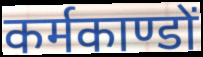
कर्मकाण्डों